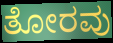
ತೋರವು